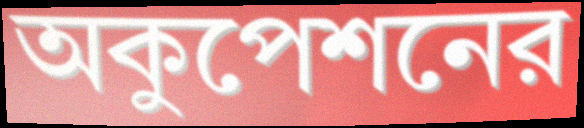
অকুপেশনের